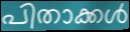
പിതാക്കൾ